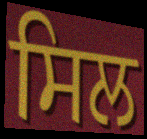
ਸਿਲ